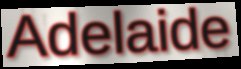
Adelaide